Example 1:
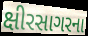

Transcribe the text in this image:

ક્ષીરસાગરના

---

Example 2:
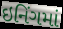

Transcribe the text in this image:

ઇનિંગમાં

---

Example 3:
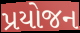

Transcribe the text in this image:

પ્રયોજન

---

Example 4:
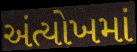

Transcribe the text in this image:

અંત્યોખમાં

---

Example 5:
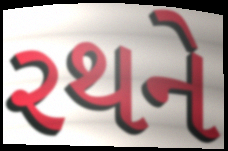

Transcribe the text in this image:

રથને